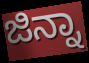
ಜಿನ್ನಾ